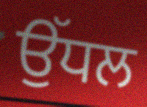
ਉੱਧਲ